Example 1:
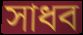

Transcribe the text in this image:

সাধব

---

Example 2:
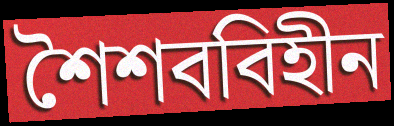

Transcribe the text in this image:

শৈশববিহীন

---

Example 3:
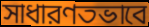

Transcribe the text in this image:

সাধারণতভাবে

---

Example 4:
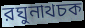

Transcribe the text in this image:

রঘুনাথচক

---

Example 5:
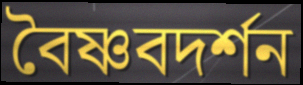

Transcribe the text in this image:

বৈষ্ণবদর্শন